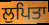
ਲੁਪਿਤਾ